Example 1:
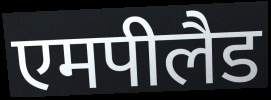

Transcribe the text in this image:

एमपीलैड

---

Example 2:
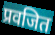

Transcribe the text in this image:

प्रवजित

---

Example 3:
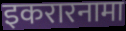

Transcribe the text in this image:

इकरारनामा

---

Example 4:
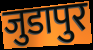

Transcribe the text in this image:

जुडापुर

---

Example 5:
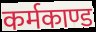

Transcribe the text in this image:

कर्मकाण्ड